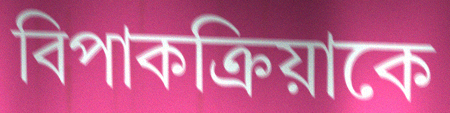
বিপাকক্রিয়াকে